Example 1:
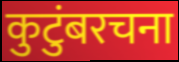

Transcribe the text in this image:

कुटुंबरचना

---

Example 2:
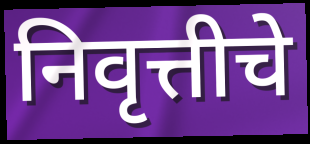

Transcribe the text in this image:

निवृत्तीचे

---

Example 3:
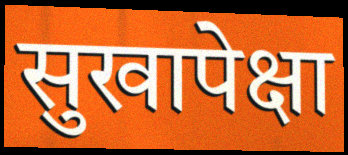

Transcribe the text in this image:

सुखापेक्षा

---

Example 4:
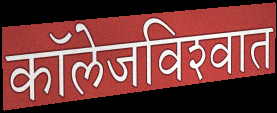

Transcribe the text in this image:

कॉलेजविश्वात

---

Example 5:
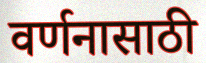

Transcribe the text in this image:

वर्णनासाठी